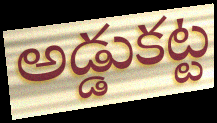
అడ్డుకట్ట